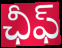
ఛీఫ్